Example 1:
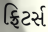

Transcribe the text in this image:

ફ્રિટર્સ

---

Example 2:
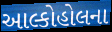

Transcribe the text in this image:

આલ્કોહોલના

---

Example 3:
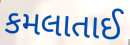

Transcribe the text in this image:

કમલાતાઈ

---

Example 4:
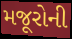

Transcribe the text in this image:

મજૂરોની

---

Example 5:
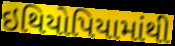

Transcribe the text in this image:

ઇથિયોપિયામાંથી